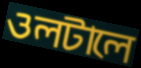
ওলটালে